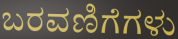
ಬರವಣಿಗೆಗಳು